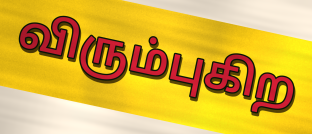
விரும்புகிற